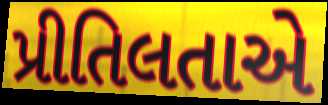
પ્રીતિલતાએ